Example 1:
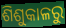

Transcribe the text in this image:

ଶିଶୁକାଳରୁ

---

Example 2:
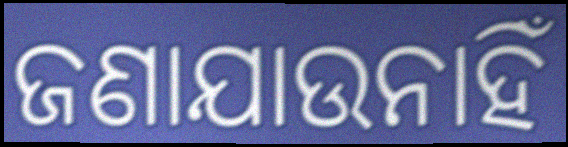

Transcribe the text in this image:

ଜଣାଯାଉନାହିଁ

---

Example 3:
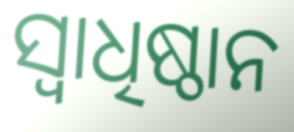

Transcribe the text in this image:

ସ୍ୱାଧିଷ୍ଠାନ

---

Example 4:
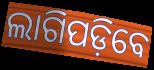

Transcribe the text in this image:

ଲାଗିପଡ଼ିବେ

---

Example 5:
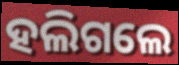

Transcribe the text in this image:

ହଲିଗଲେ